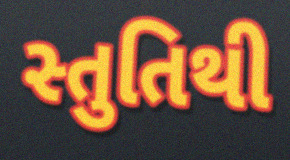
સ્તુતિથી